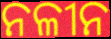
ନଳୀନ